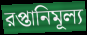
রপ্তানিমূল্য